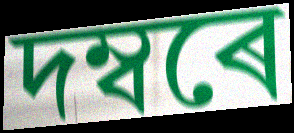
দম্বৰে